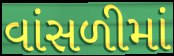
વાંસળીમાં